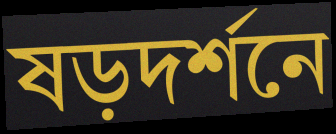
ষড়দর্শনে